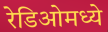
रेडिओमध्ये